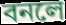
বনলে